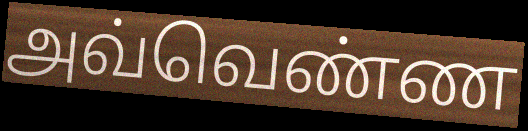
அவ்வெண்ண